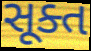
સૂક્ત